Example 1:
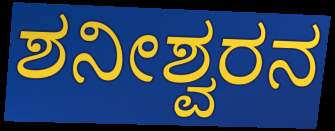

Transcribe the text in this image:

ಶನೀಶ್ವರನ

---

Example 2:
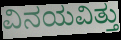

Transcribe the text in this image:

ವಿನಯವಿತ್ತು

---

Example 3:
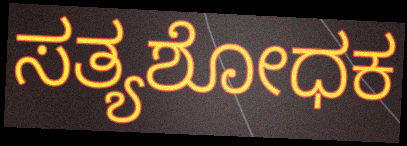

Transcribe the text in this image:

ಸತ್ಯಶೋಧಕ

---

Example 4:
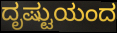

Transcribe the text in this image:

ದೃಷ್ಟುಯಂದ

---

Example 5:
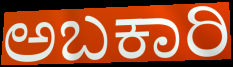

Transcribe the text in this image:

ಅಬಕಾರಿ